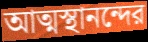
আত্মস্থানন্দের